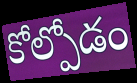
కోల్పోడం